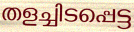
തളച്ചിടപ്പെട്ട